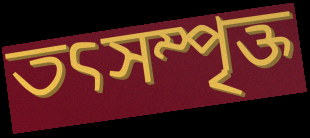
তৎসম্পৃক্ত